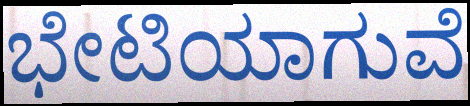
ಭೇಟಿಯಾಗುವೆ